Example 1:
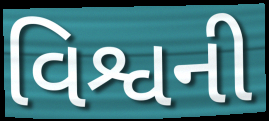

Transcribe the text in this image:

વિશ્વની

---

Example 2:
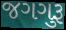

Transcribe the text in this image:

જગગુરૂ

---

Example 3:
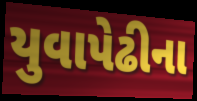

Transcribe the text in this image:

યુવાપેઢીના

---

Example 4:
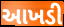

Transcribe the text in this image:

આખડી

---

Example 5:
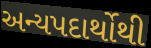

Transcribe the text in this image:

અન્યપદાર્થોથી